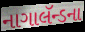
નાગાલૅન્ડના